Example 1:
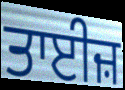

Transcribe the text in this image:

ਤਾਈਜ਼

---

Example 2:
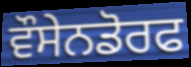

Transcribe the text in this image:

ਵੌਸੇਨਡੋਰਫ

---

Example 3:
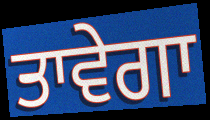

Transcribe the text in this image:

ਤਾਵੇਗਾ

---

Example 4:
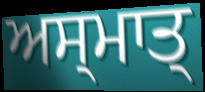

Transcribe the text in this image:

ਅਸ੍ਮਾਤ੍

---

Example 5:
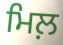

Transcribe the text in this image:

ਮਿਲ਼